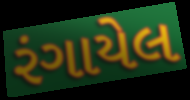
રંગાયેલ